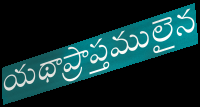
యథాప్రాప్తములైన